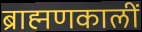
ब्राह्मणकालीं